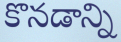
కొనడాన్ని